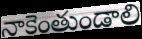
నాకెంతుండాలి